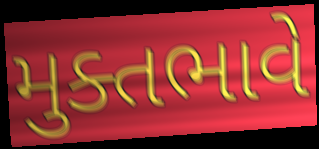
મુક્તભાવે